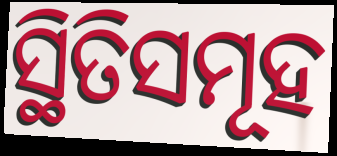
ସ୍ଥିତିସମୂହ